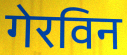
गेरविन